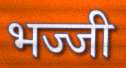
भज्जी